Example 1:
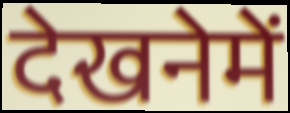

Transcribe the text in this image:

देखनेमें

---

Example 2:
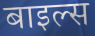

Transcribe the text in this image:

बाइल्स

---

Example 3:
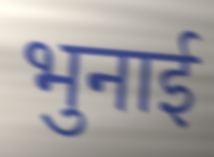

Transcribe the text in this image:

भुनाई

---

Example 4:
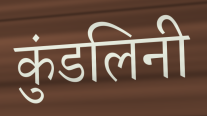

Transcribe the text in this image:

कुंडलिनी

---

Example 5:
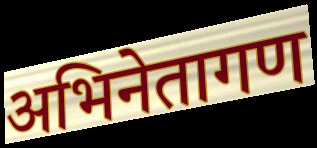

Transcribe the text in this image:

अभिनेतागण